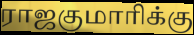
ராஜகுமாரிக்கு